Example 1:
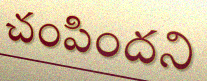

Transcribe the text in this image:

చంపిందని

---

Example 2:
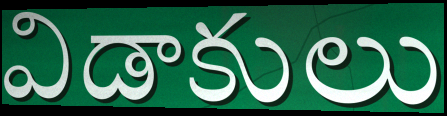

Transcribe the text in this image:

విడాకులు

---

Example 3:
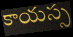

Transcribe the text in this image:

కాయస్స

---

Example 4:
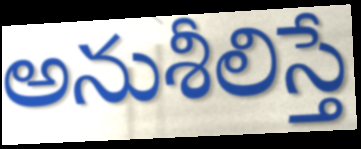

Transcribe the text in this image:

అనుశీలిస్తే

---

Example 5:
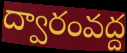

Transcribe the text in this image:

ద్వారంవద్ద